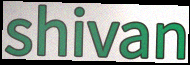
shivan